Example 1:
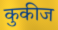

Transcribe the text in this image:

कुकीज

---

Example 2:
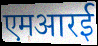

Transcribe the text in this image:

एमआरई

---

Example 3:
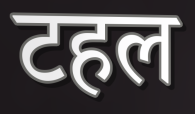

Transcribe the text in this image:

टहल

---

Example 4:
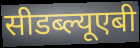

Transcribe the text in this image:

सीडब्ल्यूएबी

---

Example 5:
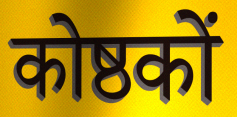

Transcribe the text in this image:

कोष्ठकों